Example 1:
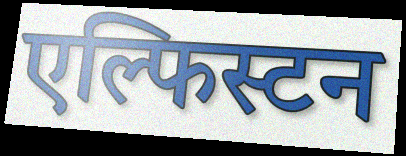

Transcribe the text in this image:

एल्फिस्टन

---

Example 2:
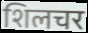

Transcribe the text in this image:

शिलचर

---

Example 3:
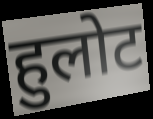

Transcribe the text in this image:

हुलोट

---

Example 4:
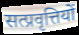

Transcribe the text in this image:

सत्प्रवृत्तियों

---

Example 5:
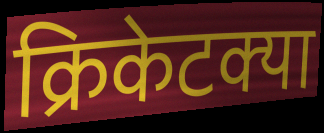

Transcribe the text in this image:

क्रिकेटक्या